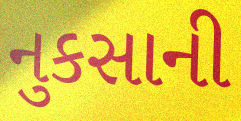
નુકસાની